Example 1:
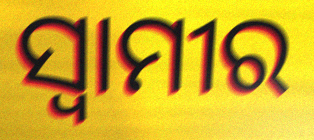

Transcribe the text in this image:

ସ୍ଵାମୀର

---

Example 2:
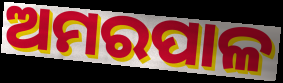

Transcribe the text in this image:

ଅମରପାଳ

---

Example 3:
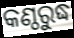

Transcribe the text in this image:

କଣ୍ଠରୁଦ୍ଧ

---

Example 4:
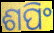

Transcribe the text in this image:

ଶପିଂ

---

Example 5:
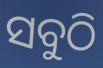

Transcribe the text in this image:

ସବୁଠି